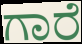
ಗಾರೆ